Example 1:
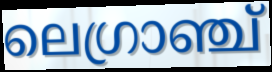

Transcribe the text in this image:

ലെഗ്രാഞ്ച്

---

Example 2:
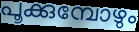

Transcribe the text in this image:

പൂക്കുമ്പോഴും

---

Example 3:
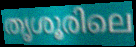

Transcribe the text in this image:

തൃശൂരിലെ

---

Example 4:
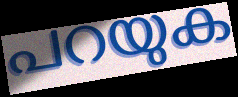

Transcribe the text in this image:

പറയുക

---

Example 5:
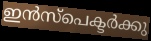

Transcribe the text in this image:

ഇൻസ്പെക്ടർക്കു